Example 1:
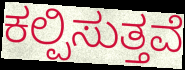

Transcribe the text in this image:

ಕಲ್ಪಿಸುತ್ತವೆ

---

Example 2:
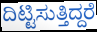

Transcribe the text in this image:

ದಿಟ್ಟಿಸುತ್ತಿದ್ದರೆ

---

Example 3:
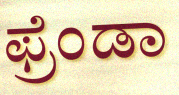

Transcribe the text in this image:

ಫ್ರೆಂಡಾ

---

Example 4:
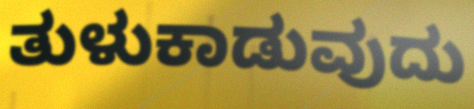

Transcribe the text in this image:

ತುಳುಕಾಡುವುದು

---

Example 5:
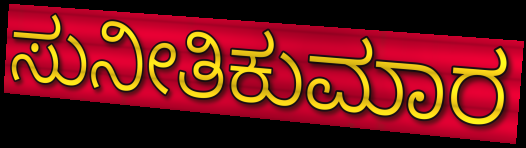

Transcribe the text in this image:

ಸುನೀತಿಕುಮಾರ